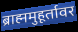
ब्राह्ममुहूर्तावर